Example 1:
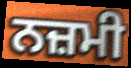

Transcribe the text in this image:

ਨਜ਼ਮੀ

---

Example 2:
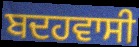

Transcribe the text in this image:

ਬਦਹਵਾਸੀ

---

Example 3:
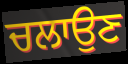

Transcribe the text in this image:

ਚਲਾਉਣ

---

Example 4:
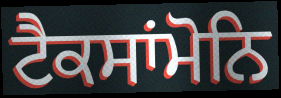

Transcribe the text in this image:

ਟੈਕਸਾਂਮੋਨਿ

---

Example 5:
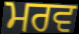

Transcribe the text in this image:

ਮਰਵ